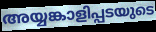
അയ്യങ്കാളിപ്പടയുടെ